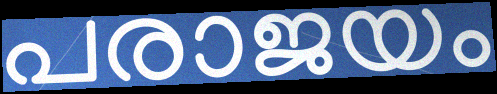
പരാജയം